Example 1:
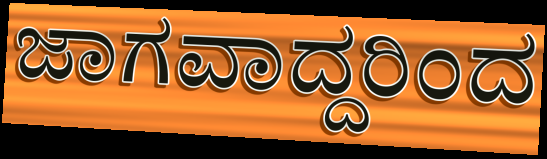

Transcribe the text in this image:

ಜಾಗವಾದ್ದರಿಂದ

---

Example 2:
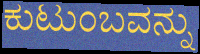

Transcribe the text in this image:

ಕುಟುಂಬವನ್ನು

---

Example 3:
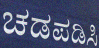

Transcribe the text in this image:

ಚಡಪಡಿಸಿ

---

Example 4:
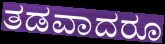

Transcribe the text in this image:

ತಡವಾದರೂ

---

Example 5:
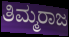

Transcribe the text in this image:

ತಿಮ್ಮರಾಜ